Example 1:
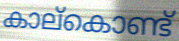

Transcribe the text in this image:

കാല്കൊണ്ട്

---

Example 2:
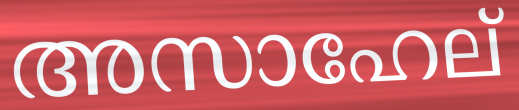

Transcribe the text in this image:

അസാഹേല്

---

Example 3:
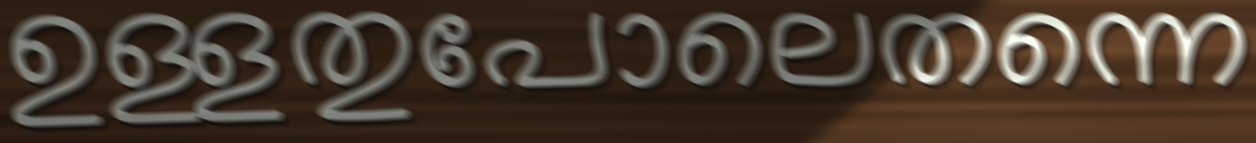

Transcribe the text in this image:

ഉള്ളതുപോലെതന്നെ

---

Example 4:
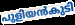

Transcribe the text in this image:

പുളിയൻകുടി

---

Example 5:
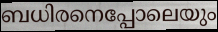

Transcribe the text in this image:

ബധിരനെപ്പോലെയും